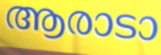
ആരാടാ